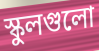
স্কুলগুলো